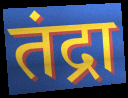
तंद्रा